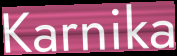
Karnika